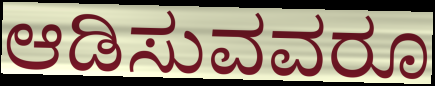
ಆಡಿಸುವವರೂ